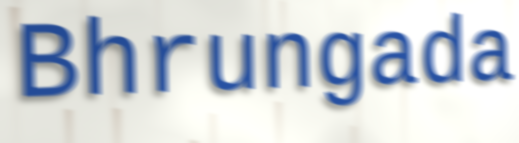
Bhrungada